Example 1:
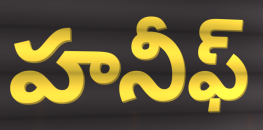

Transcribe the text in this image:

హనీఫ్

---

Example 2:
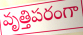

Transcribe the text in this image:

వృత్తిపరంగా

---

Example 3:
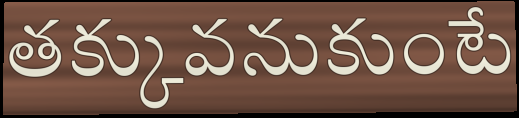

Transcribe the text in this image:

తక్కువనుకుంటే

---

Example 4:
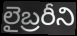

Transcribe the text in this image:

లైబ్రరీని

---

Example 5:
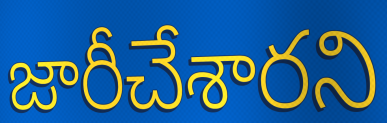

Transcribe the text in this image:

జారీచేశారని